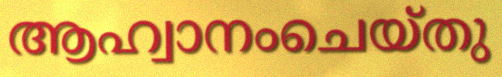
ആഹ്വാനംചെയ്തു